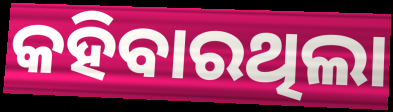
କହିବାରଥିଲା